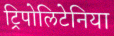
ट्रिपोलिटेनिया